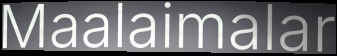
Maalaimalar